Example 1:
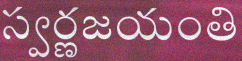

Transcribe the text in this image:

స్వర్ణజయంతి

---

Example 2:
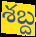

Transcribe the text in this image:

శబ్ద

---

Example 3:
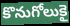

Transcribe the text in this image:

కొనుగోలుకై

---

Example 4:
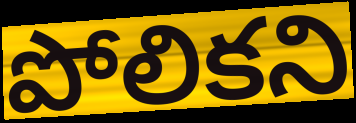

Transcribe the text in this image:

పోలికని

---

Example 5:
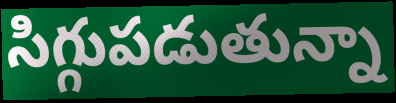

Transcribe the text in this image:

సిగ్గుపడుతున్నా